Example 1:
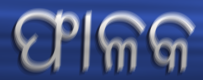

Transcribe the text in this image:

ଫାଳକ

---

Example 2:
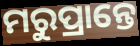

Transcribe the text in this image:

ମରୁପ୍ରାନ୍ତେ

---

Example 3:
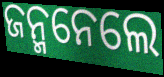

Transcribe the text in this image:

ଜନ୍ମନେଲେ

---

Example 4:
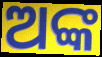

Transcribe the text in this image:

ଅଙ୍କ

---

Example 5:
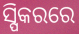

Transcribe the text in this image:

ସ୍ପିକରରେ